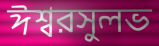
ঈশ্বরসুলভ